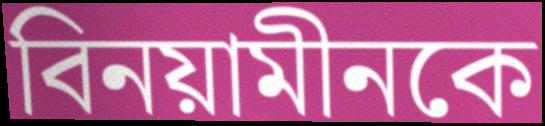
বিনয়ামীনকে